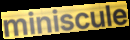
miniscule